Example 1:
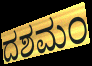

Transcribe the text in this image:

ದಶಮಂ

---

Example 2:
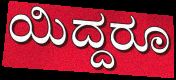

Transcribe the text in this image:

ಯಿದ್ದರೂ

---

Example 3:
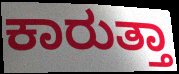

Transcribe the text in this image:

ಕಾರುತ್ತಾ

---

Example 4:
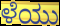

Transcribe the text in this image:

ಳೆಯು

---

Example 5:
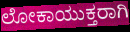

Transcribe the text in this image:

ಲೋಕಾಯುಕ್ತರಾಗಿ